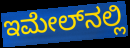
ಇಮೇಲ್‌ನಲ್ಲಿ